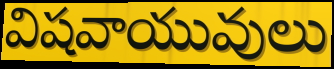
విషవాయువులు